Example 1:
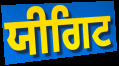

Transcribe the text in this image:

ਯੀਗਿਟ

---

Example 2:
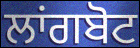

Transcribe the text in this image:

ਲਾਂਗਬੋਟ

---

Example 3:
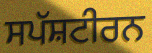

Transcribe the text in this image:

ਸਪੱਸ਼ਟੀਰਨ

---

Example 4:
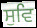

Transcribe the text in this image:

ਸੁਵਿ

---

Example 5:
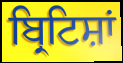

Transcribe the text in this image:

ਬ੍ਰਿਟਿਸ਼ਾਂ